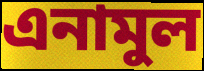
এনামুল